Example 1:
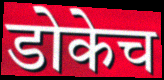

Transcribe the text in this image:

डोकेच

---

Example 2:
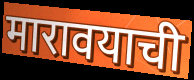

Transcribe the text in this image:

मारावयाची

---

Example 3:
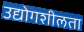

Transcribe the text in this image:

उद्योगशीलता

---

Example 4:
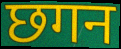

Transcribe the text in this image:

छगन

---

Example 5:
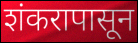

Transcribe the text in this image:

शंकरापासून